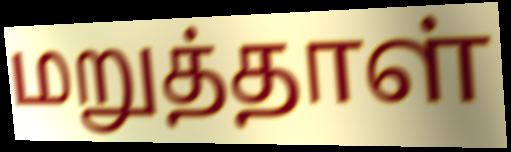
மறுத்தாள்